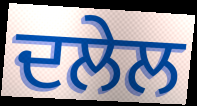
ਦਲੇਲ